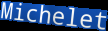
Michelet